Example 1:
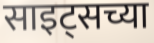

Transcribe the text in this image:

साइट्सच्या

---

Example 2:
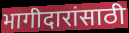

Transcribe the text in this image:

भागीदारांसाठी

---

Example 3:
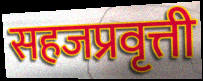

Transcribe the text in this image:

सहजप्रवृत्ती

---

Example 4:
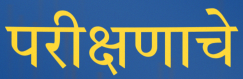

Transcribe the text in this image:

परीक्षणाचे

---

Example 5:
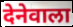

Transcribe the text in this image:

देनेवाला